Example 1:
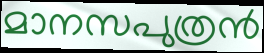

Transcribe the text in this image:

മാനസപുത്രൻ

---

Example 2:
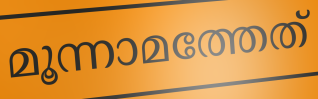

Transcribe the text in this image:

മൂന്നാമത്തേത്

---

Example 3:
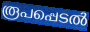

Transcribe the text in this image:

രൂപപ്പെടൽ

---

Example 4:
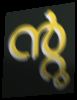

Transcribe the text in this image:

ന്റു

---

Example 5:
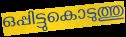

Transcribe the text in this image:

ഒപ്പിട്ടുകൊടുത്തു